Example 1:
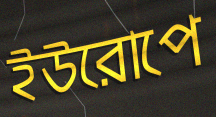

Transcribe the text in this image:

ইউরোপে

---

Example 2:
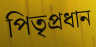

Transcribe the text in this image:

পিতৃপ্রধান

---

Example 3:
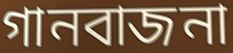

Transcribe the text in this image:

গানবাজনা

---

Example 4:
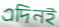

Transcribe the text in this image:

এদিনই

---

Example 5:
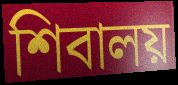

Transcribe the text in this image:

শিবালয়